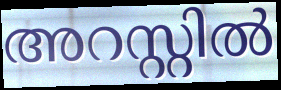
അറസ്റ്റിൽ